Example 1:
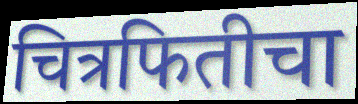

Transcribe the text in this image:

चित्रफितीचा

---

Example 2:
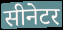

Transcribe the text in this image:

सीनेटर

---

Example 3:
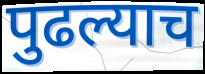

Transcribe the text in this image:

पुढल्याच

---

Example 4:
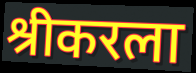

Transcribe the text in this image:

श्रीकरला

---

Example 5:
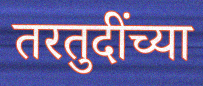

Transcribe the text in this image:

तरतुदींच्या